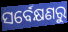
ସର୍ବେକ୍ଷଣରୁ